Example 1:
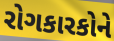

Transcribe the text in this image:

રોગકારકોને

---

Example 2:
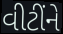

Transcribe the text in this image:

વીટીંને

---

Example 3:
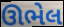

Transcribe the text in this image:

ઊભેલ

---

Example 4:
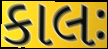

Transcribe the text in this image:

કાલઃ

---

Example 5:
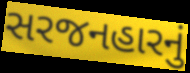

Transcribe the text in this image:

સરજનહારનું